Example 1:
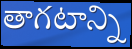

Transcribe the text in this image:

తాగటాన్ని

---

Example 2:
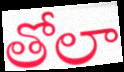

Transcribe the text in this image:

తోలా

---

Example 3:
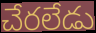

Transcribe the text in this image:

చేరలేడు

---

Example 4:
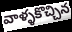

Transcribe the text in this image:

వాళ్ళకొచ్చిన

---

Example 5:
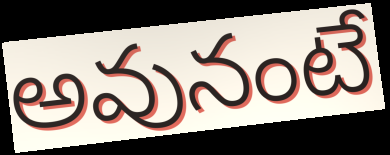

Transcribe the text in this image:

అవునంటే